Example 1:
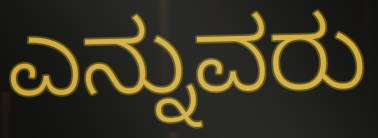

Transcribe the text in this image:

ಎನ್ನುವರು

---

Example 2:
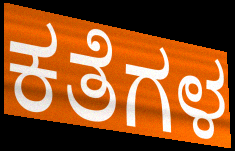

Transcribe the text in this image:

ಕತೆಗಳ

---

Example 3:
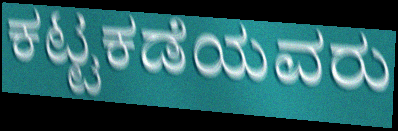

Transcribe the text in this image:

ಕಟ್ಟಕಡೆಯವರು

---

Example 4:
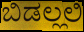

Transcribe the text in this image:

ಬಿಡಲ್ಲಲಿ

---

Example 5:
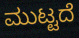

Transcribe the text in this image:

ಮುಟ್ಟದೆ